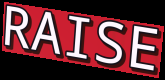
RAISE